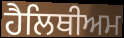
ਹੈਲਿਥੀਅਮ